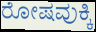
ರೋಷವುಕ್ಕಿ